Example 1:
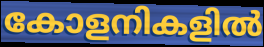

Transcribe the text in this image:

കോളനികളിൽ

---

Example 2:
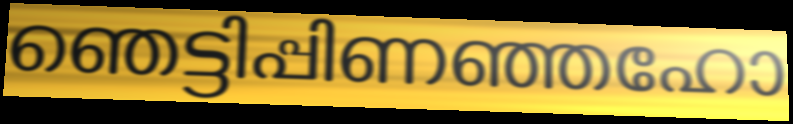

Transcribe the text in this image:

ഞെട്ടിപ്പിണഞ്ഞഹോ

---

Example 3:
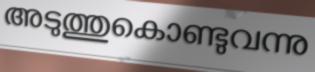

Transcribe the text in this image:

അടുത്തുകൊണ്ടുവന്നു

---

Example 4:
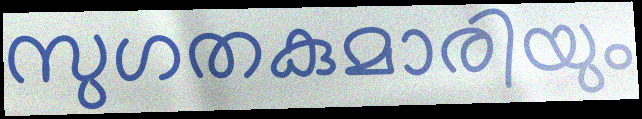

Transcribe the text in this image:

സുഗതകുമാരിയും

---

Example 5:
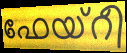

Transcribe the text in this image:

ഫേയ്റീ